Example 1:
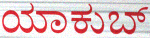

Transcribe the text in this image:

ಯಾಕುಬ್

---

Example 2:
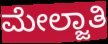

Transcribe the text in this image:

ಮೇಲ್ಜಾತಿ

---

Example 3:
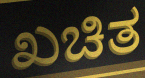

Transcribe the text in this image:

ಖಚಿತ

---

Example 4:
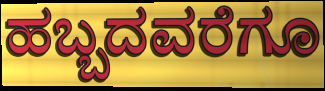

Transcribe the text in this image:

ಹಬ್ಬದವರೆಗೂ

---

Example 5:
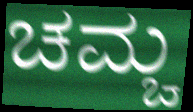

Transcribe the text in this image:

ಚಮ್ಚ